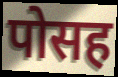
पोसह